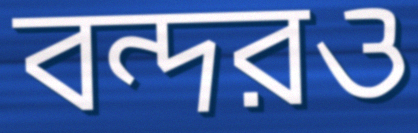
বন্দরও